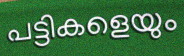
പട്ടികളെയും